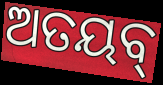
ଅତୟବ୍